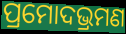
ପ୍ରମୋଦଭ୍ରମଣ